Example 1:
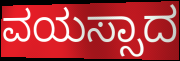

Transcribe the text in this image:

ವಯಸ್ಸಾದ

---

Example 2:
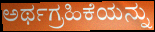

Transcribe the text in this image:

ಅರ್ಥಗ್ರಹಿಕೆಯನ್ನು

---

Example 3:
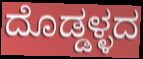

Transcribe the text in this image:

ದೊಡ್ಡಳ್ಳದ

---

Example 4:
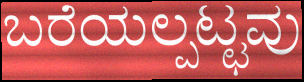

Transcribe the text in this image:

ಬರೆಯಲ್ಪಟ್ಟವು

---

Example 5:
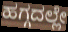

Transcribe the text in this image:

ಹಗ್ಗದಲ್ಲೇ